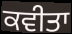
ਕਵੀਤਾ